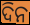
ଦିନ